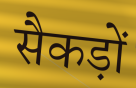
सैकड़ों